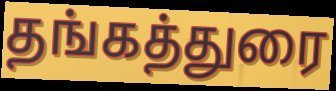
தங்கத்துரை